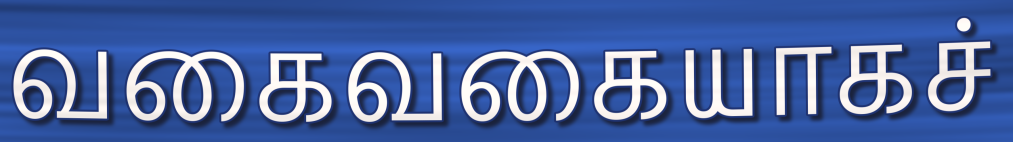
வகைவகையாகச்